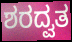
ಶರದ್ವತ